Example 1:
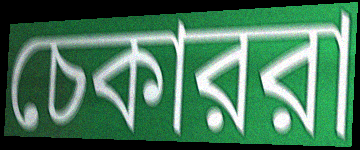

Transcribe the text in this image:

চেকাররা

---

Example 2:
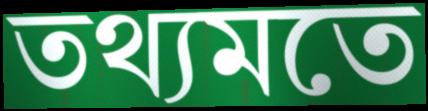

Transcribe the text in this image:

তথ্যমতে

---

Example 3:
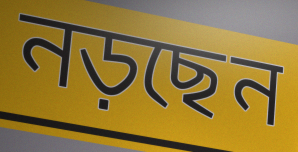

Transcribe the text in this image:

নড়ছেন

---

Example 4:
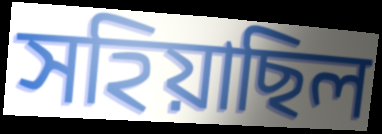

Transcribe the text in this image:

সহিয়াছিল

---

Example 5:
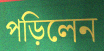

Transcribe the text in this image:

পড়িলেন